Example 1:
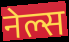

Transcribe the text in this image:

नेल्स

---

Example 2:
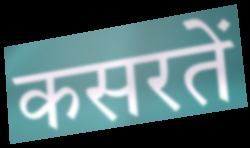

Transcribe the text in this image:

कसरतें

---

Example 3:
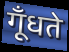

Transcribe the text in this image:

गूँधते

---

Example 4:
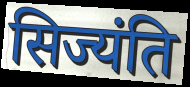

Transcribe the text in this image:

सिज्यंति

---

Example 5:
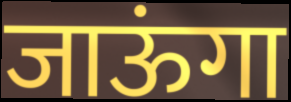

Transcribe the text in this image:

जाऊंगा